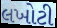
લખોટી